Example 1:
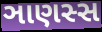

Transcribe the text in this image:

ઞાણસ્સ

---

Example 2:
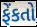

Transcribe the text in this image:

ફેંકતો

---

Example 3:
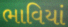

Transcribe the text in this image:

ભાવિયાં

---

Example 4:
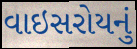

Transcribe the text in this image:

વાઇસરોયનું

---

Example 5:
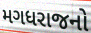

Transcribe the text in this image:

મગધરાજનો